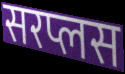
सरप्लस